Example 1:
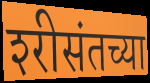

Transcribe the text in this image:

श्रीसंतच्या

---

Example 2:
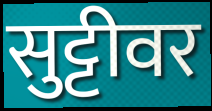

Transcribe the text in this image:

सुट्टीवर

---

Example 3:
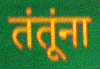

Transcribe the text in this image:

तंतूंना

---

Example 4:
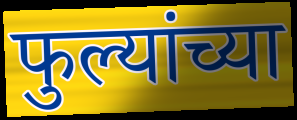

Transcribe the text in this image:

फुल्यांच्या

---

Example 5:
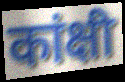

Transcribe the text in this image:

कांक्षी